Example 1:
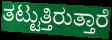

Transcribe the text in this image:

ತಟ್ಟುತ್ತಿರುತ್ತಾರೆ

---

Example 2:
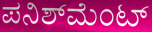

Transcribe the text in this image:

ಪನಿಶ್‌ಮೆಂಟ್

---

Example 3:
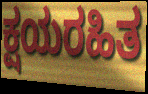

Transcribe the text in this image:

ಕ್ಷಯರಹಿತ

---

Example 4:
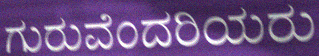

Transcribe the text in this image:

ಗುರುವೆಂದರಿಯರು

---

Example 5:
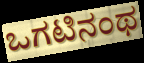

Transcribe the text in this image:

ಒಗಟಿನಂಥ